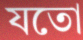
যতো